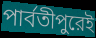
পার্বতীপুরেই